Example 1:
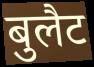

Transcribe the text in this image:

बुलैट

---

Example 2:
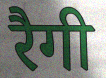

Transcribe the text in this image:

रैगी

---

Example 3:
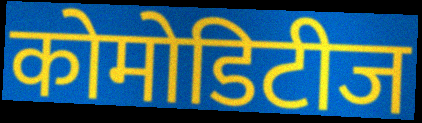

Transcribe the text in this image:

कोमोडिटीज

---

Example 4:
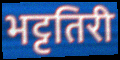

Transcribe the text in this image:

भट्टतिरी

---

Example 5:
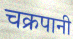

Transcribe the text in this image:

चक्रपानी